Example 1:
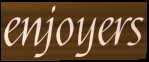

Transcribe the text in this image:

enjoyers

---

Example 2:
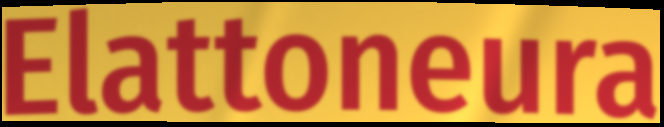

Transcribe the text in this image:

Elattoneura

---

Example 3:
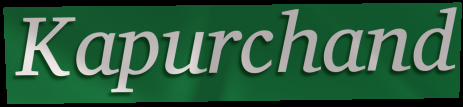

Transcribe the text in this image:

Kapurchand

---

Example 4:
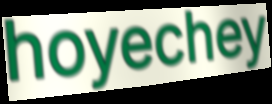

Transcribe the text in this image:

hoyechey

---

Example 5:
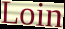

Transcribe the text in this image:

Loin